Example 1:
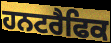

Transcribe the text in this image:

ਹਨਟਰੈਫਿਕ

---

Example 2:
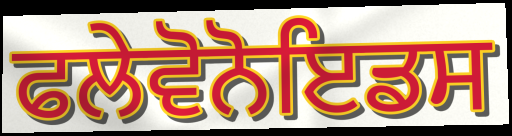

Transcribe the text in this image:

ਫਲੇਵੋਨੋਇਡਸ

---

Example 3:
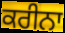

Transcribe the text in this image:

ਕਰੀਨਾ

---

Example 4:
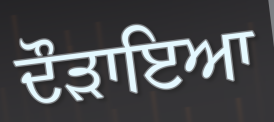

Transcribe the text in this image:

ਦੌੜਾਇਆ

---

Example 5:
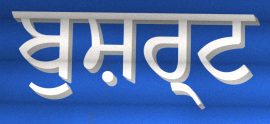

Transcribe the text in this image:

ਬੁਸ਼ਰ੍ਟ